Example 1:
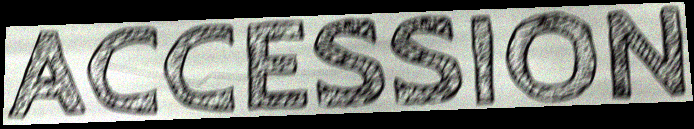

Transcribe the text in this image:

ACCESSION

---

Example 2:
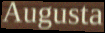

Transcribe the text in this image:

Augusta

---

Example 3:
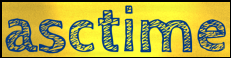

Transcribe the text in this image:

asctime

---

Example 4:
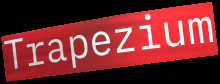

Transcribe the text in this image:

Trapezium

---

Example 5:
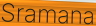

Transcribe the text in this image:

Sramana